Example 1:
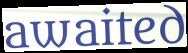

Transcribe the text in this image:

awaited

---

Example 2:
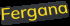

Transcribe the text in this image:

Fergana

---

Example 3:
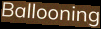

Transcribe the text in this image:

Ballooning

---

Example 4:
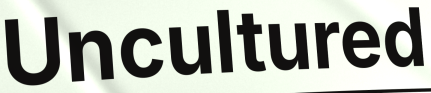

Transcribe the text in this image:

Uncultured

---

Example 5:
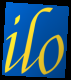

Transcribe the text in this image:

ilo